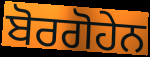
ਬੋਰਗੋਹੇਨ